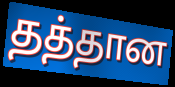
தத்தான